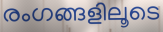
രംഗങ്ങളിലൂടെ